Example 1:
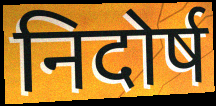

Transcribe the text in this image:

निदोर्ष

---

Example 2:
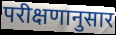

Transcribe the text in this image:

परीक्षणानुसार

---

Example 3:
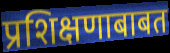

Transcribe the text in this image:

प्रशिक्षणाबाबत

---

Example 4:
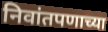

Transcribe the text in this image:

निवांतपणाच्या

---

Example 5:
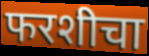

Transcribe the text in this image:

फरशीचा